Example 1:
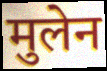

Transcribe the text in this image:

मुलेन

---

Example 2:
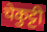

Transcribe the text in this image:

चेकुट्टी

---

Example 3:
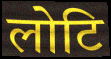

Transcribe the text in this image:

लोटि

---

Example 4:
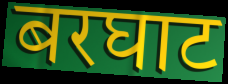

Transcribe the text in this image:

बरघाट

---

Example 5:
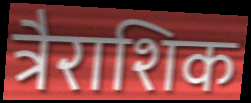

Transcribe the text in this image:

त्रैराशिक